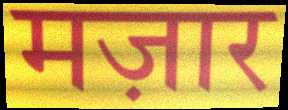
मज़ार